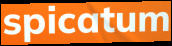
spicatum